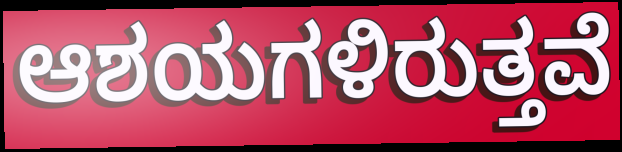
ಆಶಯಗಳಿರುತ್ತವೆ